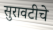
सुरावटीचे